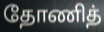
தோணித்